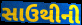
સાઉથીની